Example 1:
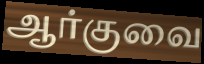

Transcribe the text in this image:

ஆர்குவை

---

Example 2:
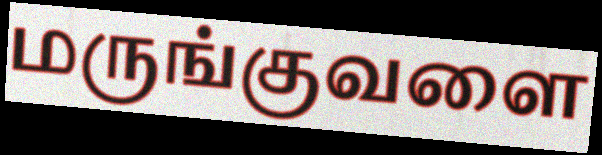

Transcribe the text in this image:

மருங்குவளை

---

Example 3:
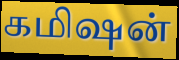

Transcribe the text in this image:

கமிஷன்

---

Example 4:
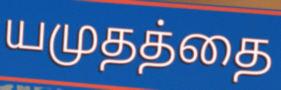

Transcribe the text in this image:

யமுதத்தை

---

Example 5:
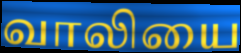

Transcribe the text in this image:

வாலியை